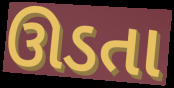
ઊડતા